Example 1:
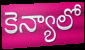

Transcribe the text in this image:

కెన్యాలో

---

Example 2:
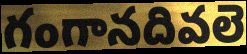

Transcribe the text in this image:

గంగానదివలె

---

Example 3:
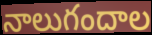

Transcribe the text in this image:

నాలుగందాల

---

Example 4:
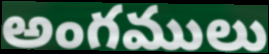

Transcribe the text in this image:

అంగములు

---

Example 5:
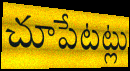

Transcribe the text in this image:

చూపేటట్లు